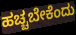
ಹಚ್ಚಬೇಕೆಂದು